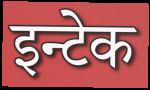
इन्टेक